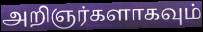
அறிஞர்களாகவும்